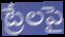
ట్రేలపై